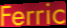
Ferric